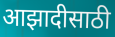
आझादीसाठी